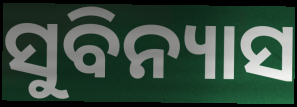
ସୁବିନ୍ୟାସ